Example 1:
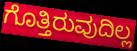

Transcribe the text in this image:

ಗೊತ್ತಿರುವುದಿಲ್ಲ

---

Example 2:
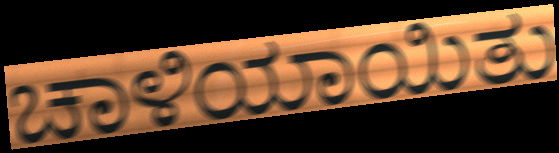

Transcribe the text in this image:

ಚಾಳಿಯಾಯಿತು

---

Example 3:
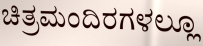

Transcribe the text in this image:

ಚಿತ್ರಮಂದಿರಗಳಲ್ಲೂ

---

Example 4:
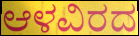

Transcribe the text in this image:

ಆಳವಿರದ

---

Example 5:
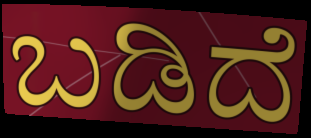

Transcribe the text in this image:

ಬಡಿದೆ